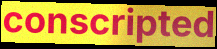
conscripted